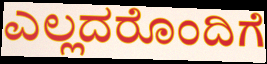
ಎಲ್ಲದರೊಂದಿಗೆ